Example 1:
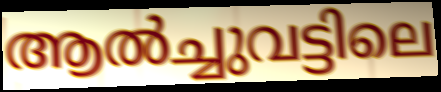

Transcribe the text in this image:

ആൽച്ചുവട്ടിലെ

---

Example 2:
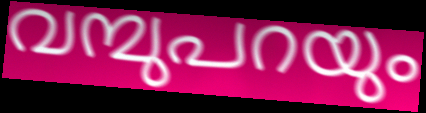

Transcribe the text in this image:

വമ്പുപറയും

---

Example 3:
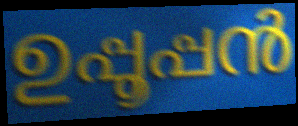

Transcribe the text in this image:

ഉപ്പൂപ്പൻ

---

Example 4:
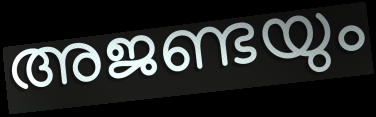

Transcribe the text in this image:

അജണ്ടയും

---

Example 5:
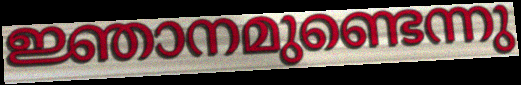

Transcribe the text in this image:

ജ്ഞാനമുണ്ടെന്നു